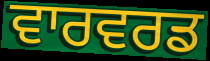
ਵਾਰਵਰਡ